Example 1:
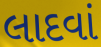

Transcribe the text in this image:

લાદવાં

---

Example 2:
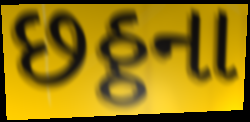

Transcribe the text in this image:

છઠ્ઠના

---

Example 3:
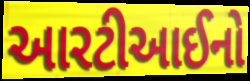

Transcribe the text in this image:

આરટીઆઈનો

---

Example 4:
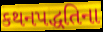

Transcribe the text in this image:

કથનપદ્ધતિના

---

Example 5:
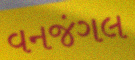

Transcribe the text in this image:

વનજંગલ